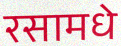
रसामधे